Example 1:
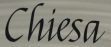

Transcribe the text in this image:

Chiesa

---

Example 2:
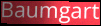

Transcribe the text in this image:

Baumgart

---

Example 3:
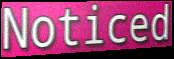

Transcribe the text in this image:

Noticed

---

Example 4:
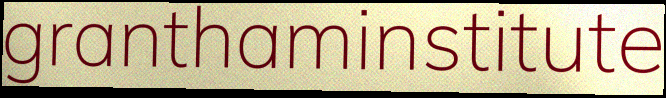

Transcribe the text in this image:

granthaminstitute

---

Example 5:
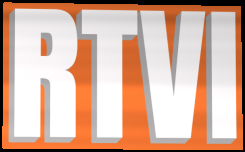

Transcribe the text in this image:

RTVI